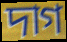
দাগ